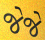
જેજે